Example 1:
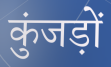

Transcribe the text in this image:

कुंजड़ों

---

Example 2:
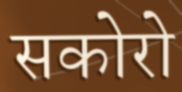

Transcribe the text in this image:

सकोरो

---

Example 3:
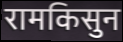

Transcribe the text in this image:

रामकिसुन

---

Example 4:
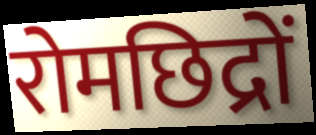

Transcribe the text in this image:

रोमछिद्रों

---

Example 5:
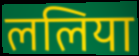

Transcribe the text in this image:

ललिया